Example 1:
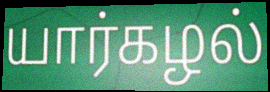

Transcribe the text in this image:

யார்கழல்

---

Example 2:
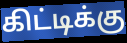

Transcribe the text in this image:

கிட்டிக்கு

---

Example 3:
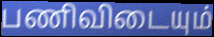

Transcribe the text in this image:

பணிவிடையும்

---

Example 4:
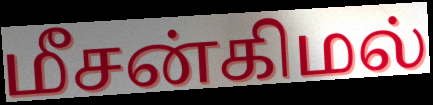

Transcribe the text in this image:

மீசன்கிமல்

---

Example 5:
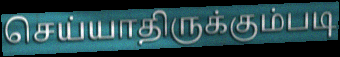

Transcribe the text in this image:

செய்யாதிருக்கும்படி